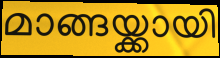
മാങ്ങയ്ക്കായി